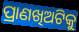
ପ୍ରାଣଖିଅଟିକୁ